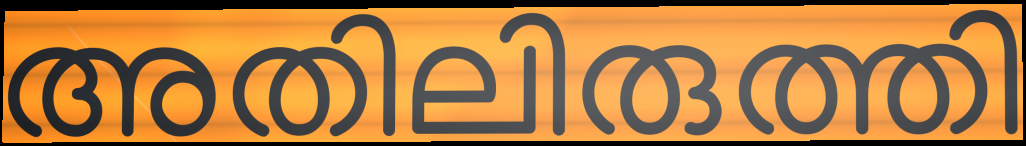
അതിലിരുത്തി